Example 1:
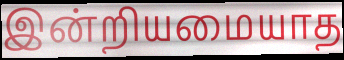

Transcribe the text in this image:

இன்றியமையாத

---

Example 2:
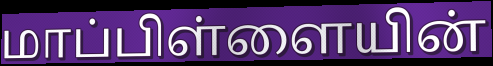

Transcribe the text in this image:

மாப்பிள்ளையின்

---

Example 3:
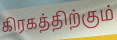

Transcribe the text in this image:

கிரகத்திற்கும்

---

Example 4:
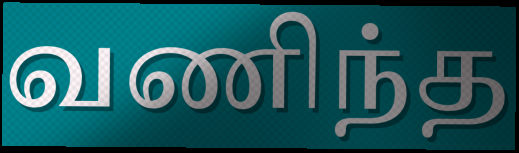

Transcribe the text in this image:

வணிந்த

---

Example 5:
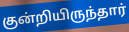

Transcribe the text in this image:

குன்றியிருந்தார்